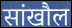
सांखौल